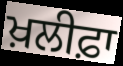
ਖ਼ਲੀਫ਼ਾ